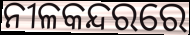
ନୀଳକନ୍ଦରରେ